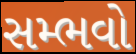
સમ્ભવો